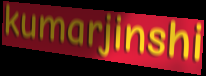
kumarjinshi